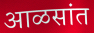
आळसांत